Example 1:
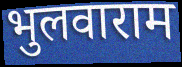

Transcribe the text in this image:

भुलवाराम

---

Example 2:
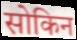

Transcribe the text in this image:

सोकिन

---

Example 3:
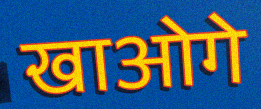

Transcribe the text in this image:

खाओगे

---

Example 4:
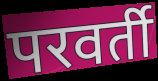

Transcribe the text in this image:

परवर्ती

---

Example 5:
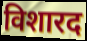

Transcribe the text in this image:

विशारद